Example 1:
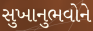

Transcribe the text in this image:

સુખાનુભવોને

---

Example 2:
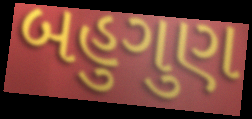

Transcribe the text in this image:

બહુગુણ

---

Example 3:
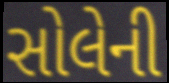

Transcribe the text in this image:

સોલેની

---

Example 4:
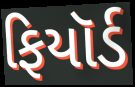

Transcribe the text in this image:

ફિયૉર્ડ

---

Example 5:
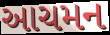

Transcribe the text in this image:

આચમન